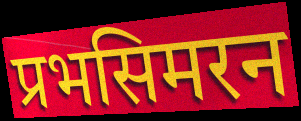
प्रभसिमरन